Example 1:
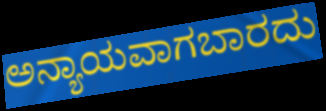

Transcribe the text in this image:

ಅನ್ಯಾಯವಾಗಬಾರದು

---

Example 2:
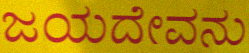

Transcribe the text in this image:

ಜಯದೇವನು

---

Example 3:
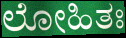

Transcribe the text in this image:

ಲೋಹಿತಃ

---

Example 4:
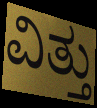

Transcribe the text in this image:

ವಿತ್ತು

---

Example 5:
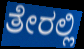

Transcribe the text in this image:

ತೇರಲ್ಲಿ